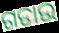
ଗଡାଉ